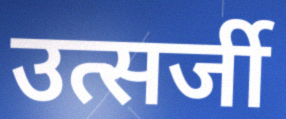
उत्सर्जी